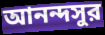
আনন্দসুর